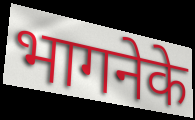
भागनेके